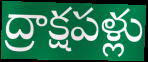
ద్రాక్షపళ్లు